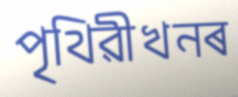
পৃথিৱীখনৰ